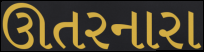
ઊતરનારા